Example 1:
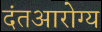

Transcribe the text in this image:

दंतआरोग्य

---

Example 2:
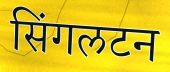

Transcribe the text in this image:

सिंगलटन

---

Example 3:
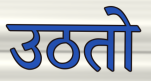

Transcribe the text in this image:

उठतो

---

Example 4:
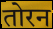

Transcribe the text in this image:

तोरन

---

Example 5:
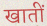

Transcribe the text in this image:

खातीं